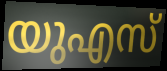
യുഎസ്